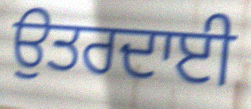
ਉਤਰਦਾਈ